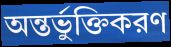
অন্তর্ভুক্তিকরণ